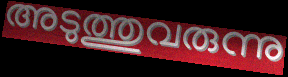
അടുത്തുവരുന്നു